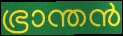
ഭ്രാന്തൻ